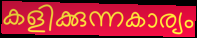
കളിക്കുന്നകാര്യം